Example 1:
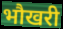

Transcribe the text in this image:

भौखरी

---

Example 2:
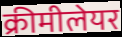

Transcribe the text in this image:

क्रीमीलेयर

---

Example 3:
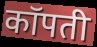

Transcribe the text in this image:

कॉपती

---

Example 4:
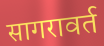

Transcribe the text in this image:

सागरावर्त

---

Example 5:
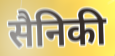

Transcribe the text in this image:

सैनिकी